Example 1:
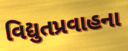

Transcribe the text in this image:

વિદ્યુતપ્રવાહના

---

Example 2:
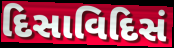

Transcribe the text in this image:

દિસાવિદિસં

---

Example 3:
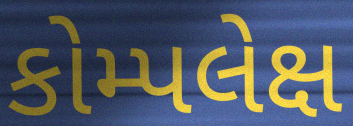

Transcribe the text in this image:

કોમ્પલેક્ષ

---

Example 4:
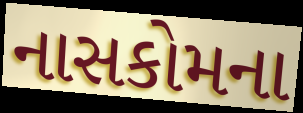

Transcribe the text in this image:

નાસકોમના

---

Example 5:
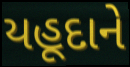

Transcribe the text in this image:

યહૂદાને